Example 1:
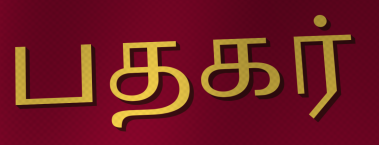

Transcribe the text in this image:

பதகர்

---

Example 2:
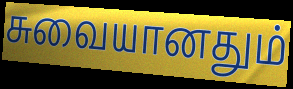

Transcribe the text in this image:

சுவையானதும்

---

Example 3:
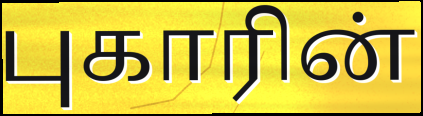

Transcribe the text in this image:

புகாரின்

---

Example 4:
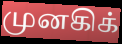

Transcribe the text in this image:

முனகிக்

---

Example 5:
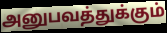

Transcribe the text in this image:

அனுபவத்துக்கும்